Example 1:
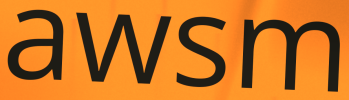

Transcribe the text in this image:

awsm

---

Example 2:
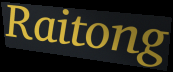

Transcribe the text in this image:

Raitong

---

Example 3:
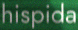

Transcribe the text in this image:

hispida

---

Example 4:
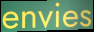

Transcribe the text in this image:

envies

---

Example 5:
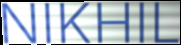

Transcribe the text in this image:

NIKHIL